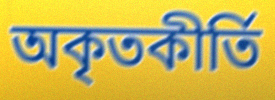
অকৃতকীর্তি